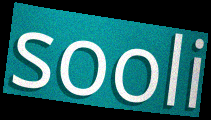
sooli